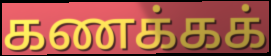
கணக்கக்